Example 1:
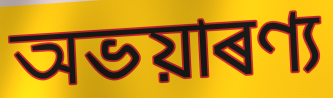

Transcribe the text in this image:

অভয়াৰণ্য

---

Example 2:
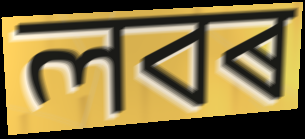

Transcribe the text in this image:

লবৰ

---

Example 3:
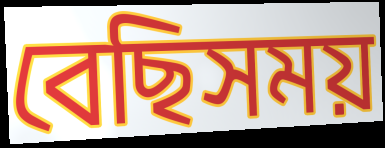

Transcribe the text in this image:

বেছিসময়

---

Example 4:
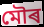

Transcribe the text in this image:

মৌৰ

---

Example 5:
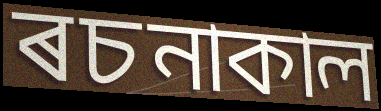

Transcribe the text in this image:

ৰচনাকাল